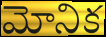
మోనిక